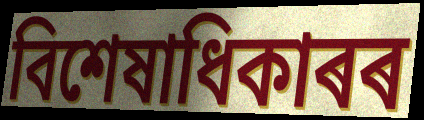
বিশেষাধিকাৰৰ